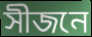
সীজনে